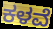
ಕಳವೆ